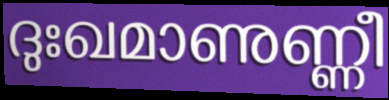
ദുഃഖമാണുണ്ണീ